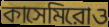
কাসেমিরোও